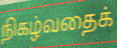
நிகழ்வதைக்